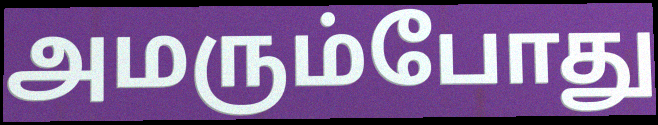
அமரும்போது